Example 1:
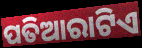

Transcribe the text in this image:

ପତିଆରାଟିଏ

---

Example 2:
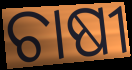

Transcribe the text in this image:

ଚାଷୀ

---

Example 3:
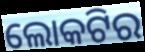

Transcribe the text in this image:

ଲୋକଟିର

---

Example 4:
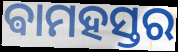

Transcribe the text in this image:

ଵାମହସ୍ତର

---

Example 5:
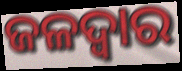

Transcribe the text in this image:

ଜଳଦ୍ୱାର